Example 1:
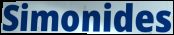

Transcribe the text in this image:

Simonides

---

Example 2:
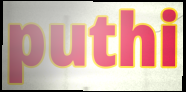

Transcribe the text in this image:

puthi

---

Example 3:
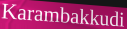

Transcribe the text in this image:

Karambakkudi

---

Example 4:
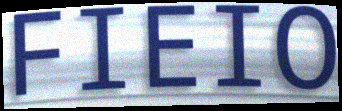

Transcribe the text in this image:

FIEIO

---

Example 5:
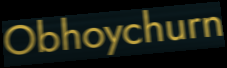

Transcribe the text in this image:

Obhoychurn